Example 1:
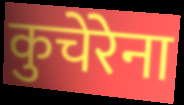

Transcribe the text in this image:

कुचेरेना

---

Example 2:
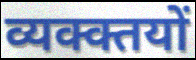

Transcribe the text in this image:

व्यक्क्तयों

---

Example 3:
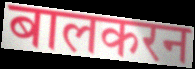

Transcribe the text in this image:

बालकरन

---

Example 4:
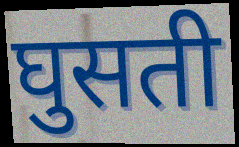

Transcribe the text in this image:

घुसती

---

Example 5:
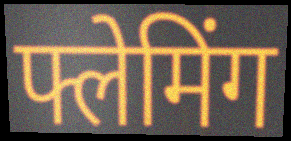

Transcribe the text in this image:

फ्लेमिंग